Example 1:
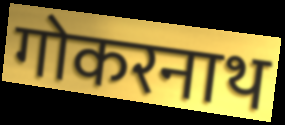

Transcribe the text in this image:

गोकरनाथ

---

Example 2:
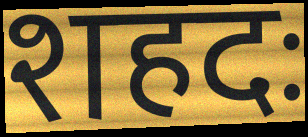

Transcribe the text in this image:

शहदः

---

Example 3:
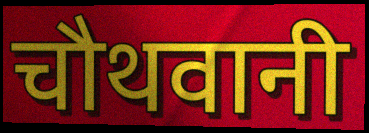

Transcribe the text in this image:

चौथवानी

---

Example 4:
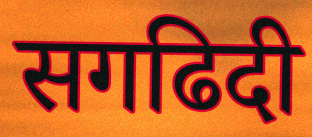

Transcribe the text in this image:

सगढिदी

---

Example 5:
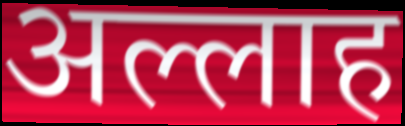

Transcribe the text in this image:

अल्लाह